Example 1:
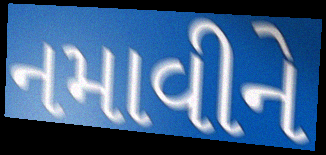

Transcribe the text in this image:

નમાવીને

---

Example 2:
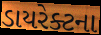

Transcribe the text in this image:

ડાયરેક્ટના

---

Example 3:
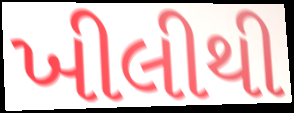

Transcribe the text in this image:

ખીલીથી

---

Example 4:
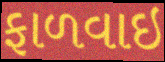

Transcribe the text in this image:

ફાળવાઇ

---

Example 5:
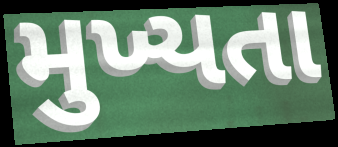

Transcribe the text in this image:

મુખ્યતા